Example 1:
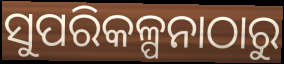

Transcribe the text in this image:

ସୁପରିକଳ୍ପନାଠାରୁ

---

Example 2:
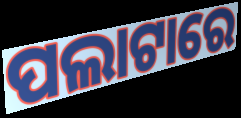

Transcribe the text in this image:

ପଲାଟାରେ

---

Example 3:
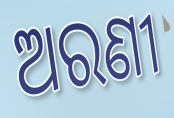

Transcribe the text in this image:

ଅରଣୀ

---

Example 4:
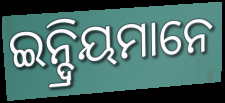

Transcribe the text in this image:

ଇନ୍ଦ୍ରିୟମାନେ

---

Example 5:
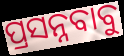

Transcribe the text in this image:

ପ୍ରସନ୍ନବାବୁ